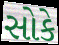
સોકે